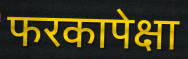
फरकापेक्षा